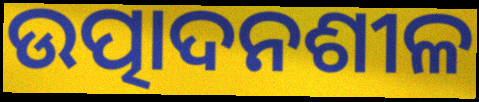
ଉତ୍ପାଦନଶୀଳ